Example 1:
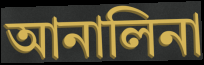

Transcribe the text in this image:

আনালিনা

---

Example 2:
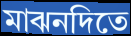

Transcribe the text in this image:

মাঝনদিতে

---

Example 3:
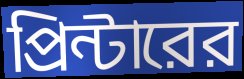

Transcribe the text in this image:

প্রিন্টারের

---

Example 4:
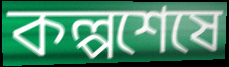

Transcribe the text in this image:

কল্পশেষে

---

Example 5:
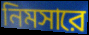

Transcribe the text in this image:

নিমসারে